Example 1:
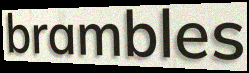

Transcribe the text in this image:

brambles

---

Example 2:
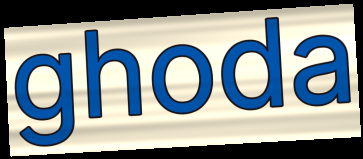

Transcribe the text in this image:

ghoda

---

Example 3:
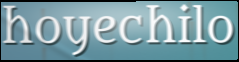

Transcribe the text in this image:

hoyechilo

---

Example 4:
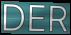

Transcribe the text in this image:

DER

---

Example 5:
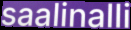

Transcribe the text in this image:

saalinalli